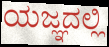
ಯಜ್ಞದಲ್ಲಿ